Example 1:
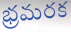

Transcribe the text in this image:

భ్రమరక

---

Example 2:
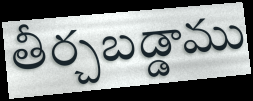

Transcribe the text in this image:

తీర్చబడ్డాము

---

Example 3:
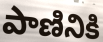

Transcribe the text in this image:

పాణినికి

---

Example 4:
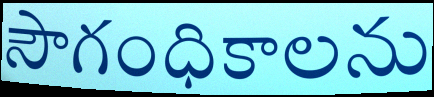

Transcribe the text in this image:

సౌగంధికాలను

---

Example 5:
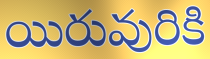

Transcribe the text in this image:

యిరువురికి